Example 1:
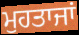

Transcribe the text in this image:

ਮੁਹਤਾਜਾਂ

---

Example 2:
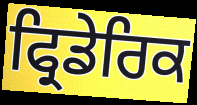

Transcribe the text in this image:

ਫ੍ਰਿਡੇਰਿਕ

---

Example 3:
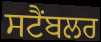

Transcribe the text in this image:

ਸਟੈਂਬਲਰ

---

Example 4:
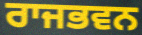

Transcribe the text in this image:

ਰਾਜਭਵਨ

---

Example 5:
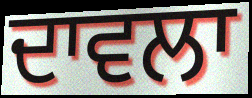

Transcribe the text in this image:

ਦਾਵਲਾ